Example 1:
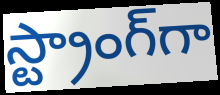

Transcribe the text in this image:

స్ట్రాంగ్‌గా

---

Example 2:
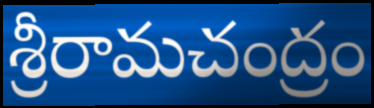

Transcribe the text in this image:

శ్రీరామచంద్రం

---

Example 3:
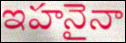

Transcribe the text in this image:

ఇహనైనా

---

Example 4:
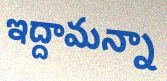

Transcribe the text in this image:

ఇద్దామన్నా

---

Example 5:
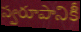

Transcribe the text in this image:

స్వరూపానికీ